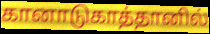
கானாடுகாத்தானில்